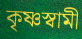
কৃষ্ণস্বামী